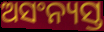
ଅସଂନ୍ୟସ୍ତ